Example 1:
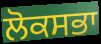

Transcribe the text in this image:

ਲੋਕਸਭਾ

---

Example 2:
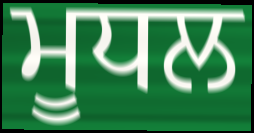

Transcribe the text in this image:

ਮੂਧਲ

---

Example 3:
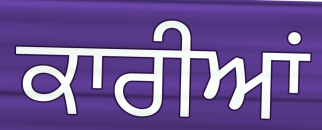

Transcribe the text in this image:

ਕਾਰੀਆਂ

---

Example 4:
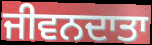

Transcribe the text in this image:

ਜੀਵਨਦਾਤਾ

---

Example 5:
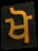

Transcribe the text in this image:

ਖੋ